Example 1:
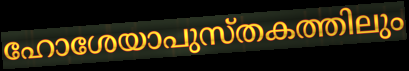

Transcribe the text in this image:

ഹോശേയാപുസ്തകത്തിലും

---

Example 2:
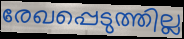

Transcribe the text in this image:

രേഖപ്പെടുത്തില്ല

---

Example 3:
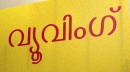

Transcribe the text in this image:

വ്യൂവിംഗ്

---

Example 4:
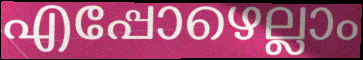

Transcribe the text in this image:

എപ്പോഴെല്ലാം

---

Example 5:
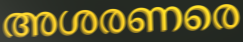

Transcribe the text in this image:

അശരണരെ